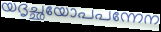
യദൃച്ഛയോപപന്നേന